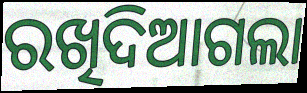
ରଖିଦିଆଗଲା